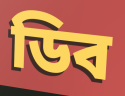
ডিব